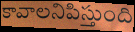
కావాలనిపిస్తుంది